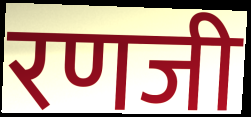
रणजी